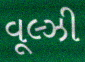
વૂલ્ઝી